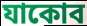
যাকোব